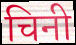
चिनी